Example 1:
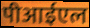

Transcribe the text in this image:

पीआईएल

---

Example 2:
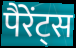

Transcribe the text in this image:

पैरेंट्स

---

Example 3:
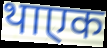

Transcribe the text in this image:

थाएक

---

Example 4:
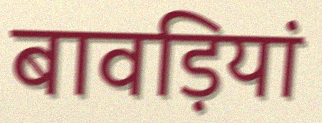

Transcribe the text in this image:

बावड़ियां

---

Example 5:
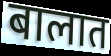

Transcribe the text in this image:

बालात